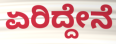
ಏರಿದ್ದೇನೆ